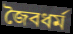
জৈবধর্ম